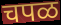
चपळ